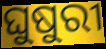
ଘୁଷୁରୀ